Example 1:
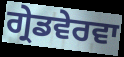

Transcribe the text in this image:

ਗ੍ਰੇਡਵੇਰਵਾ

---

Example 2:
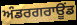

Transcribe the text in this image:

ਅੰਡਰਗਰਾਊੰਡ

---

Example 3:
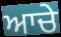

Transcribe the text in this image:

ਆਚੇ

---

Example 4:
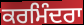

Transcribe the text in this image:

ਕਰਮਿੰਦਰਾ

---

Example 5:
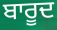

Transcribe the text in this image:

ਬਾਰੂਦ